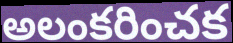
అలంకరించక